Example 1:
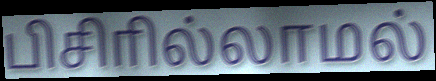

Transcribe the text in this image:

பிசிரில்லாமல்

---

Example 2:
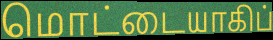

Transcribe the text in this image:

மொட்டையாகிப்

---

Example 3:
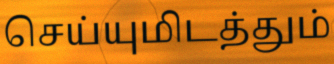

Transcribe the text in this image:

செய்யுமிடத்தும்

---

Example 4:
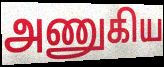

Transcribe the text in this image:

அணுகிய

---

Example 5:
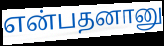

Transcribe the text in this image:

என்பதனானு